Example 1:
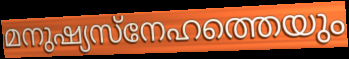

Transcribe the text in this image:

മനുഷ്യസ്നേഹത്തെയും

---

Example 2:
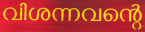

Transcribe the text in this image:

വിശന്നവന്റെ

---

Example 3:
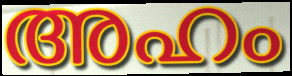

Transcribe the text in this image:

അഹം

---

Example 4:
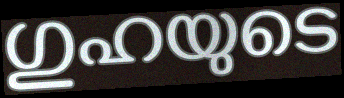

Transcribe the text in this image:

ഗുഹയുടെ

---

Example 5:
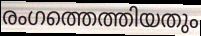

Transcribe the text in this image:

രംഗത്തെത്തിയതും